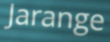
Jarange